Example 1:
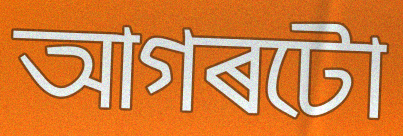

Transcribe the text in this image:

আগৰটো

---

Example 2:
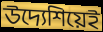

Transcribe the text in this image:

উদ্যেশিয়েই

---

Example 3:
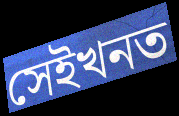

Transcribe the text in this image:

সেইখনত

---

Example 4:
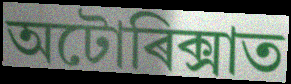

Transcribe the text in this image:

অটোৰিক্সাত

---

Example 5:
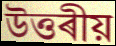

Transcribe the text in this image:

উত্তৰীয়